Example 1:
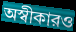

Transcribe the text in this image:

অস্বীকারও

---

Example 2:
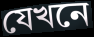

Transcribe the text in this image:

যেখনে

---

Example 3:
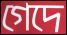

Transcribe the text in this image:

গেদে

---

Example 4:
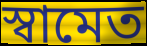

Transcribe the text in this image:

স্বামেত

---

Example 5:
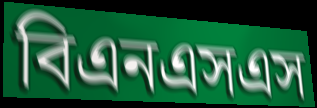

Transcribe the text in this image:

বিএনএসএস